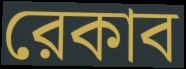
রেকাব